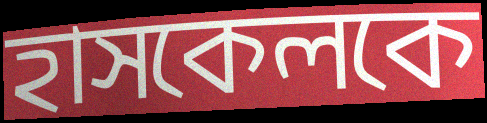
হাসকেলকে